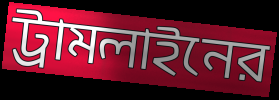
ট্রামলাইনের